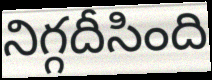
నిగ్గదీసింది